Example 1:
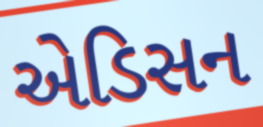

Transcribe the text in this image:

એડિસન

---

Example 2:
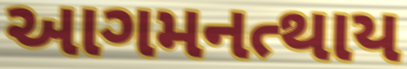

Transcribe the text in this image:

આગમનત્થાય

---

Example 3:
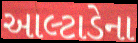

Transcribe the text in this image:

આલ્ટાડેના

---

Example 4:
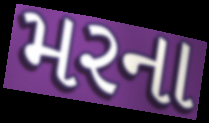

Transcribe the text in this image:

મરના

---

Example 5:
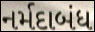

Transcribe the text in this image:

નર્મદાબંધ